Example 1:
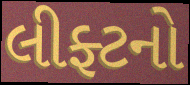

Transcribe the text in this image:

લીફ્ટનો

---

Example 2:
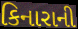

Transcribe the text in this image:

કિનારાની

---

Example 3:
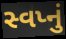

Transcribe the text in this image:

સ્વપ્નું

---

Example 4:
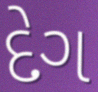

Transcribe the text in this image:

દેગ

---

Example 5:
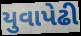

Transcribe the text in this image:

યુવાપેઢી